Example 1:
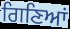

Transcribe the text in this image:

ਗਿਣਿਆਂ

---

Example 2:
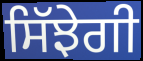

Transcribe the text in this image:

ਸਿੱਝੇਗੀ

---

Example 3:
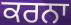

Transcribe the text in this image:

ਕਰਨਾ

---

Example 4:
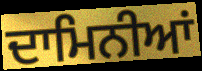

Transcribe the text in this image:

ਦਾਮਿਨੀਆਂ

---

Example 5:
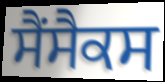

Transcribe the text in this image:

ਸੈਂਸੈਕਸ